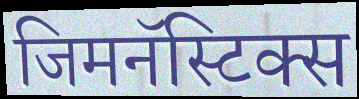
जिमनॅस्टिक्स